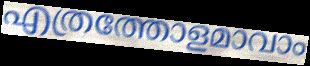
എത്രത്തോളമാവാം